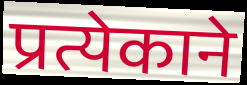
प्रत्येकाने